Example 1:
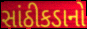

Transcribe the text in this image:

સાંઠીકડાનો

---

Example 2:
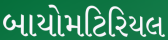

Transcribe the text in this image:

બાયોમટિરિયલ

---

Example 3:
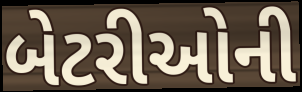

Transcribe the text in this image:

બેટરીઓની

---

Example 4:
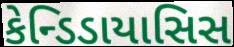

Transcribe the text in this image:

કેન્ડિડાયાસિસ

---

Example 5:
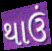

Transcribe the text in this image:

થાઉં